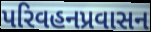
પરિવહનપ્રવાસન